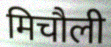
मिचौली